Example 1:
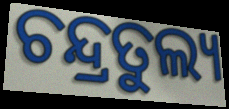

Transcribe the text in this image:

ଚନ୍ଦ୍ରତୁଲ୍ୟ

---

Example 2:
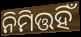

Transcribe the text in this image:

ନିମିତ୍ତହିଁ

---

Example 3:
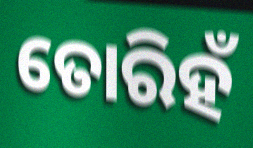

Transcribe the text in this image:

ତୋରିହଁ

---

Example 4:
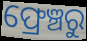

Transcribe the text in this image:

ଫ୍ରେଞ୍ଚରୁ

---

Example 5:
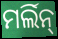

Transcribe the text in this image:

ମର୍ଲିନ୍